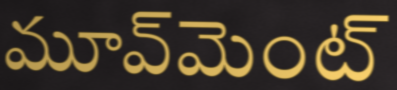
మూవ్‌మెంట్